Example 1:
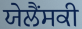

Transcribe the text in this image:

ਯੇਲੈਂਸਕੀ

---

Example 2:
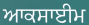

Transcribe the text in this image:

ਆਕਸਾਈਮ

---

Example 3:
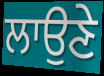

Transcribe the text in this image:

ਲਾਉਣੇ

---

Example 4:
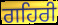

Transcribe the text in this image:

ਗਹਿਰੀ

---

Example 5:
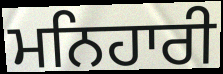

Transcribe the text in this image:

ਮਨਿਹਾਰੀ